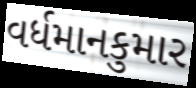
વર્ધમાનકુમાર